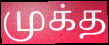
முக்த